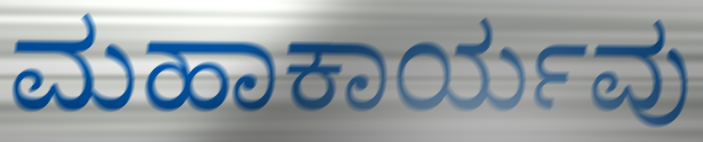
ಮಹಾಕಾರ್ಯವು